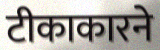
टीकाकारने